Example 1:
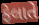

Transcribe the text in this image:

ફેલાતે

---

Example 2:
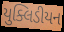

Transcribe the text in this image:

યુક્લિડીયન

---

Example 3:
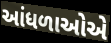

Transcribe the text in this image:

આંધળાઓએ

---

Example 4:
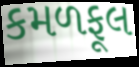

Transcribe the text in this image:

કમળફૂલ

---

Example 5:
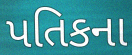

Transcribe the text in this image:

પતિકના